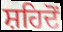
ਸ਼ਹਿਦੋਂ